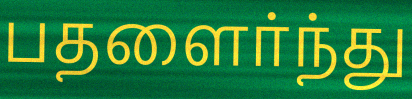
பதளைர்ந்து